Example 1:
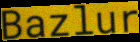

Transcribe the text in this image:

Bazlur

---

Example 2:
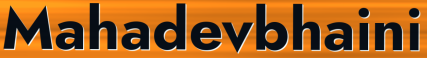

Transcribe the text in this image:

Mahadevbhaini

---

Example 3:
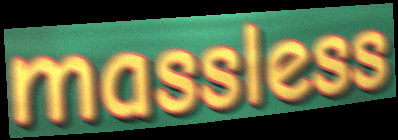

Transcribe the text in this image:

massless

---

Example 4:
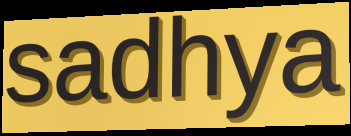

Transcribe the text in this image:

sadhya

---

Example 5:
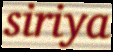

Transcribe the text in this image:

siriya